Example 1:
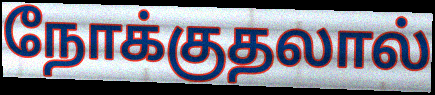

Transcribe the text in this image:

நோக்குதலால்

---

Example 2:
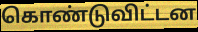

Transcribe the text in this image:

கொண்டுவிட்டன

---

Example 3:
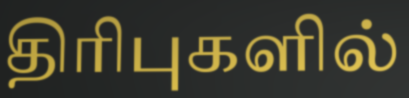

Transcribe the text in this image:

திரிபுகளில்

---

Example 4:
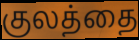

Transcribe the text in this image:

குலத்தை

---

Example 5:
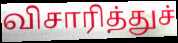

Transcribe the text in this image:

விசாரித்துச்